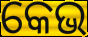
କେଭ